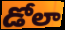
డోలా